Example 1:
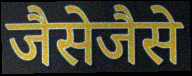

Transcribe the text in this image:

जैसेजैसे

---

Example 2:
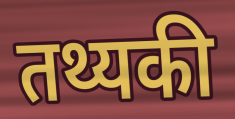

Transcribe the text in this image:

तथ्यकी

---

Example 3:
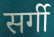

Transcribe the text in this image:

सर्गी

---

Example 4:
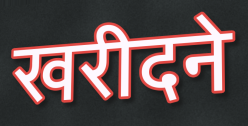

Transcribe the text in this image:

खरीदने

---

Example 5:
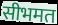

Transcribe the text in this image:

सीभमत